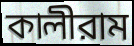
কালীরাম